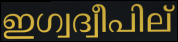
ഇഗ്വദ്വീപില്